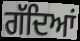
ਗੱਦਿਆਂ